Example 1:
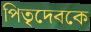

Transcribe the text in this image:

পিতৃদেবকে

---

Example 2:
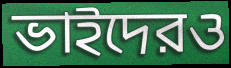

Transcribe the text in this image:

ভাইদেরও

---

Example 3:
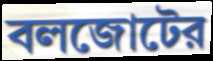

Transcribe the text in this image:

বলজোটের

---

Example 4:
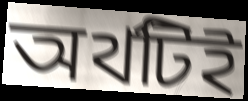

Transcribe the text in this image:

অর্থটিই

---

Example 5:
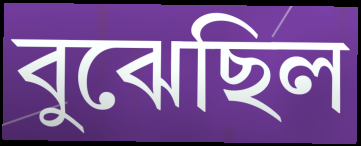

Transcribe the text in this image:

বুঝেছিল